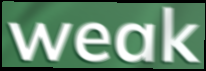
weak